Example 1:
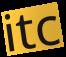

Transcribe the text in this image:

itc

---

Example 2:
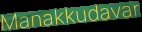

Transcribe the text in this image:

Manakkudavar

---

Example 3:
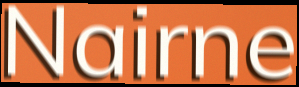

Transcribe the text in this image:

Nairne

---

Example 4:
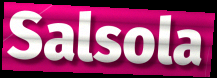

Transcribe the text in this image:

Salsola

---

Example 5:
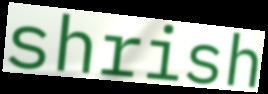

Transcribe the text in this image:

shrish